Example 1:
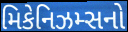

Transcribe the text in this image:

મિકેનિઝમ્સનો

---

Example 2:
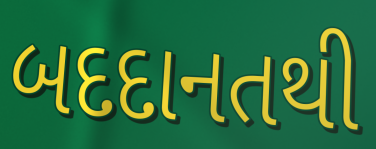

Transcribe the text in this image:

બદદાનતથી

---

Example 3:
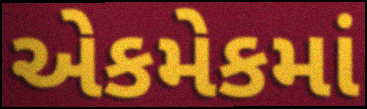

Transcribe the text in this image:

એકમેકમાં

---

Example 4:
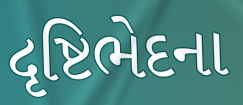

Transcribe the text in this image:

દૃષ્ટિભેદના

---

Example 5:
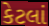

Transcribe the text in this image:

કેટલાં